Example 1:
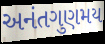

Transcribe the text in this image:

અનંતગુણમય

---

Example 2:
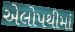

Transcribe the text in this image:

એલોપથીમાં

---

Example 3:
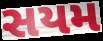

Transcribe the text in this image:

સયમ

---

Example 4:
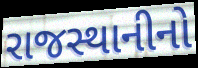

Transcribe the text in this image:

રાજસ્થાનીનો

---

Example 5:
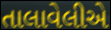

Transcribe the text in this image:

તાલાવેલીએ